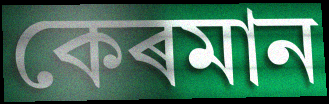
কেৰমান